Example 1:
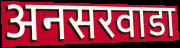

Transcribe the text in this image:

अनसरवाडा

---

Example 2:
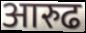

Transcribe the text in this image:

आरुढ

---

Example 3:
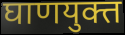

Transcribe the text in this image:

घाणयुक्त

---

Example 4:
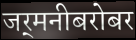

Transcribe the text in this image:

जर्मनीबरोबर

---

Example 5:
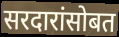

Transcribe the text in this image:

सरदारांसोबत